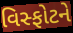
વિસ્ફોટને